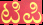
ಟಿಪಿ